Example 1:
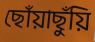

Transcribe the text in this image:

ছোঁয়াছুঁয়ি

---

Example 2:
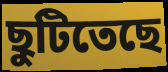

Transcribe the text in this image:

ছুটিতেছে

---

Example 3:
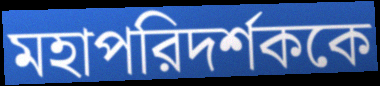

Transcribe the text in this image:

মহাপরিদর্শককে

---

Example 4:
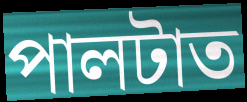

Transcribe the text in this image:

পালটাত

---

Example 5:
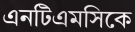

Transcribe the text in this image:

এনটিএমসিকে